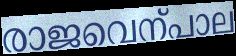
രാജവെന്പാല